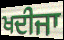
ਖਦੀਜਾ